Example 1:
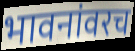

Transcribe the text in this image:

भावनांवरच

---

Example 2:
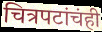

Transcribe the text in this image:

चित्रपटांचंही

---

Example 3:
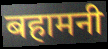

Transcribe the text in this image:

बहामनी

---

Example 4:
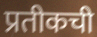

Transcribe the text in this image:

प्रतीकची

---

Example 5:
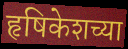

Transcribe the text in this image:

हृषिकेशच्या